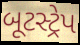
બૂટસ્ટ્રેપ